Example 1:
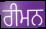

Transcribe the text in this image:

ਰੀਮਨ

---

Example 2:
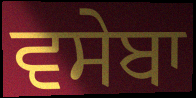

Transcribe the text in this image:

ਵਸੇਬਾ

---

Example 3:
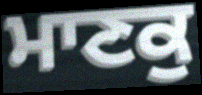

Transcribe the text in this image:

ਮਾਣਕੁ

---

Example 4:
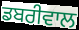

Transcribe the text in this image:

ਡਬਰੀਵਾਲ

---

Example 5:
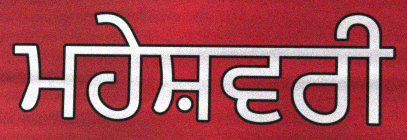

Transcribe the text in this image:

ਮਹੇਸ਼ਵਰੀ